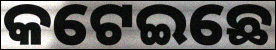
କଟେଇଛେ